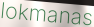
lokmanas